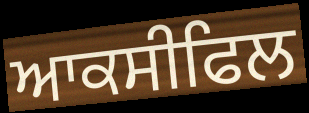
ਆਕਸੀਫਿਲ